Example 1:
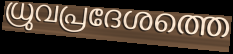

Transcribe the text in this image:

ധ്രുവപ്രദേശത്തെ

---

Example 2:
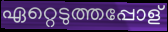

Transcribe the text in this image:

ഏറ്റെടുത്തപ്പോള്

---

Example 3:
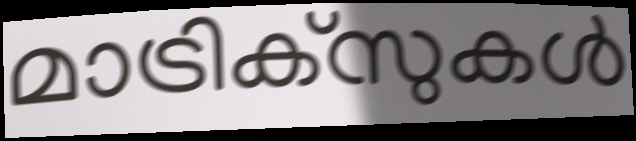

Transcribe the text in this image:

മാട്രിക്സുകൾ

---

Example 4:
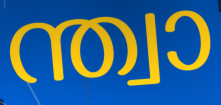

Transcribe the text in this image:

ന്ത്വാ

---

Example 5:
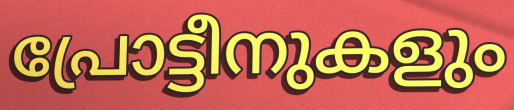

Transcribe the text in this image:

പ്രോട്ടീനുകളും